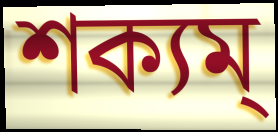
শক্যম্